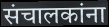
संचालकांना